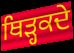
ਥਿੜ੍ਹਕਦੇ